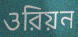
ওরিয়ন